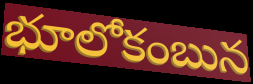
భూలోకంబున